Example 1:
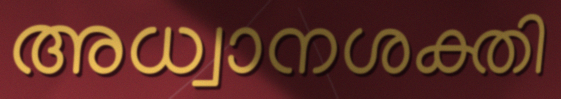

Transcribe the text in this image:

അധ്വാനശക്തി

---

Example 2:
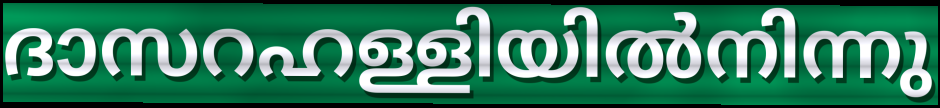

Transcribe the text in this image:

ദാസറഹള്ളിയിൽനിന്നു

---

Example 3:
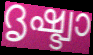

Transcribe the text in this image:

ദൃഷ്ട്വാ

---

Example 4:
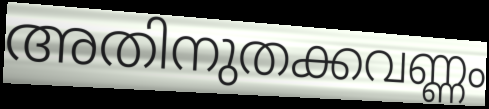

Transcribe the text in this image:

അതിനുതക്കവണ്ണം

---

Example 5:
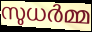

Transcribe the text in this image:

സുധർമ്മ